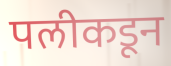
पलीकडून